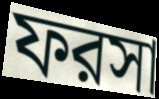
ফরসা